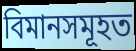
বিমানসমূহত